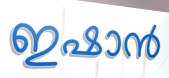
ഇഷാൻ